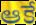
ఆకే